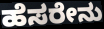
ಹೆಸರೇನು